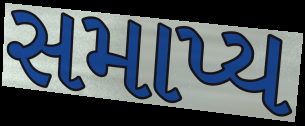
સમાપ્ય